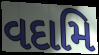
વદામિ